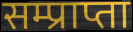
सम्प्राप्ता